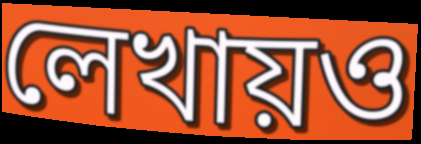
লেখায়ও